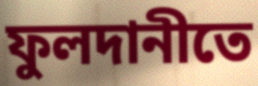
ফুলদানীতে